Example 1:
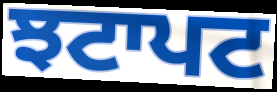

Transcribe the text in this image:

ਝਟਾਪਟ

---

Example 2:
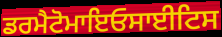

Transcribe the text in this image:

ਡਰਮੈਟੋਮਾਇਓਸਾਈਟਿਸ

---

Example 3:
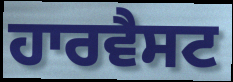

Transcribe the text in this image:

ਹਾਰਵੈਸਟ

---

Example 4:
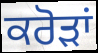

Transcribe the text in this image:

ਕਰੋੜਾਂ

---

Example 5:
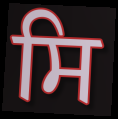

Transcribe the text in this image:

ਸਿ